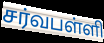
சர்வபள்ளி